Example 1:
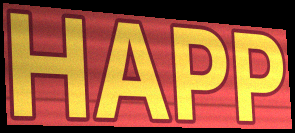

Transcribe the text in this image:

HAPP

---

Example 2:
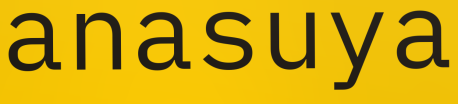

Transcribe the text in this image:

anasuya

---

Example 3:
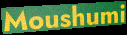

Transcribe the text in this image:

Moushumi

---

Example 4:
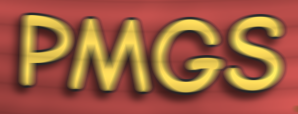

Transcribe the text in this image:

PMGS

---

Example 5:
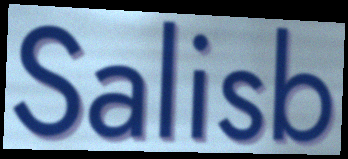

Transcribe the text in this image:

Salisb